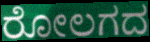
ರೋಲಗದ